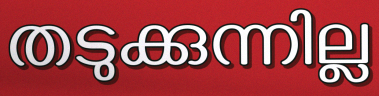
തടുക്കുന്നില്ല